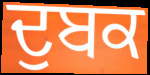
ਦੁਬਕ